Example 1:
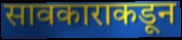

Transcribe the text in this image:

सावकाराकडून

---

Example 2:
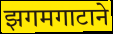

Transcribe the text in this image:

झगमगाटाने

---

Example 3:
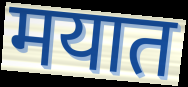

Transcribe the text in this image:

मयात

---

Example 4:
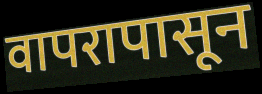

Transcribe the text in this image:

वापरापासून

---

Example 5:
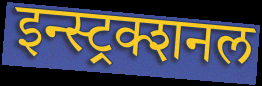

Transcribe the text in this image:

इन्स्ट्रक्शनल